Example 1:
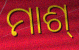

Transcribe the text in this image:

ମାଶ୍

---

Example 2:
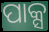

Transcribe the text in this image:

ପାକ୍ସ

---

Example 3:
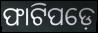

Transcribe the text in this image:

ଫାଟିପଡ଼େ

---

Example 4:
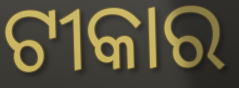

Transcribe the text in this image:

ଟୀକାର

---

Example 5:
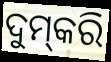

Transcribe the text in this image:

ଦୁମ୍‍କରି